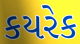
કયરેક